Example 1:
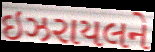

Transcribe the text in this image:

ઇઝરાયલને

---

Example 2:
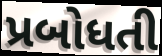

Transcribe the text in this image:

પ્રબોધતી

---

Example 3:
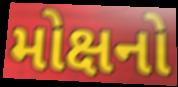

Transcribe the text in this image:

મોક્ષનો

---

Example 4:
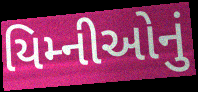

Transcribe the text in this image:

યિમ્નીઓનું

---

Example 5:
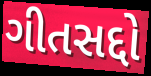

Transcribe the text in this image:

ગીતસદ્દો